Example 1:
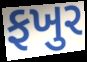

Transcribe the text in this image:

ફખુર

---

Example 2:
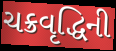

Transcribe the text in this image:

ચક્રવૃદ્ધિની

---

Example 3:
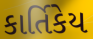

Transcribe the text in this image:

કાર્તિકેય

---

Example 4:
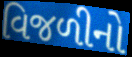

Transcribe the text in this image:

વિજળીનો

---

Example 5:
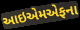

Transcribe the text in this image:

આઇએમએફના